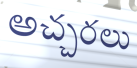
అచ్చరలు